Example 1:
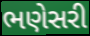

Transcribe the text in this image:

ભણેસરી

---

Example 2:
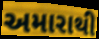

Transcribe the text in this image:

અમારાથી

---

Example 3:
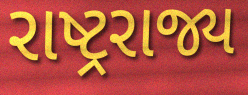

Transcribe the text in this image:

રાષ્ટ્રરાજ્ય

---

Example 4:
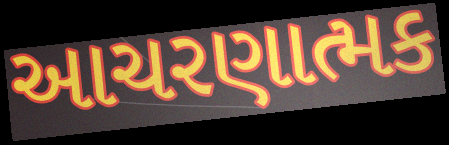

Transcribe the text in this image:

આચરણાત્મક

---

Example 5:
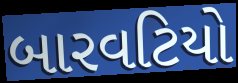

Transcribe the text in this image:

બારવટિયો